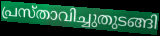
പ്രസ്താവിച്ചുതുടങ്ങി